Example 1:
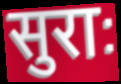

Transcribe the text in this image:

सुराः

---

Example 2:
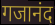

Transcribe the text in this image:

गजानंद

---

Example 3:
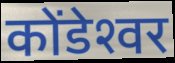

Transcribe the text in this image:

कोंडेश्वर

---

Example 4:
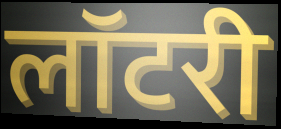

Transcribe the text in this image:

लॉटरी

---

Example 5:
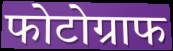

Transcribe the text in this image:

फोटोग्राफ